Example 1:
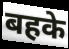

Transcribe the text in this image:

बहके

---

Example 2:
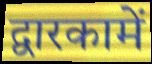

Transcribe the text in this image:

द्वारकामें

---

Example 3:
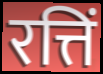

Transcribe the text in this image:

रत्तिं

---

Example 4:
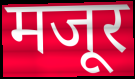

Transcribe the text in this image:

मजूर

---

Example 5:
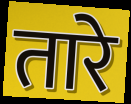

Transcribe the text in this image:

तारे